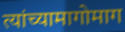
त्यांच्यामागोमाग